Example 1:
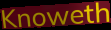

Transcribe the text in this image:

Knoweth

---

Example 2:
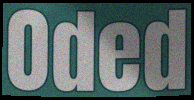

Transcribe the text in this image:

Oded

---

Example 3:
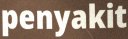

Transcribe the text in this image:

penyakit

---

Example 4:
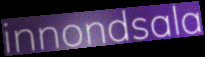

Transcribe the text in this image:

innondsala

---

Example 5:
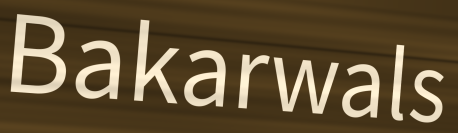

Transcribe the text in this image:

Bakarwals